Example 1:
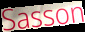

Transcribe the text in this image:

Sasson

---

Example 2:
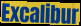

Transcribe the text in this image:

Excalibur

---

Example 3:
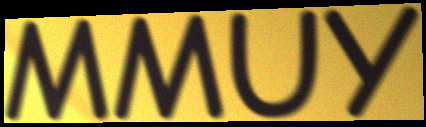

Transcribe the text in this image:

MMUY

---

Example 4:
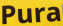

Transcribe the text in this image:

Pura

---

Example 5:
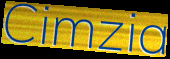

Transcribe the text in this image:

Cimzia